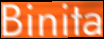
Binita